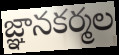
జ్ఞానకర్మల